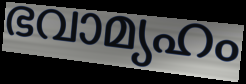
ഭവാമ്യഹം